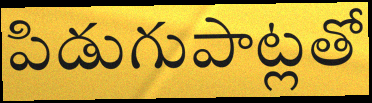
పిడుగుపాట్లతో